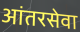
आंतरसेवा